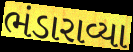
ભંડારાવ્યા